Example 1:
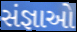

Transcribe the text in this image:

સંજ્ઞાઓ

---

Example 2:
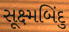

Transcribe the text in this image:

સૂક્ષ્મબિંદુ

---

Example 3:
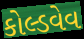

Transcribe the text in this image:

કોલ્ડવેવ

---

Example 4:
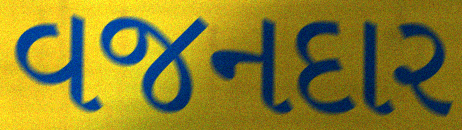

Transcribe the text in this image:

વજનદાર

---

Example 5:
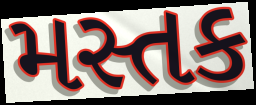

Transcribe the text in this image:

મસ્તક